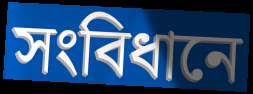
সংবিধানে